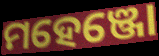
ମହେଞ୍ଜୋ